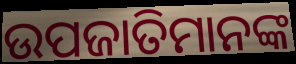
ଉପଜାତିମାନଙ୍କ